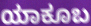
ಯಾಕೂಬ